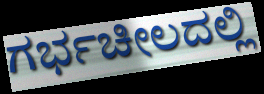
ಗರ್ಭಚೀಲದಲ್ಲಿ